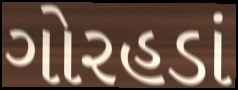
ગોરહડાં